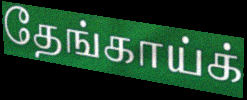
தேங்காய்க்